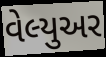
વેલ્યુઅર